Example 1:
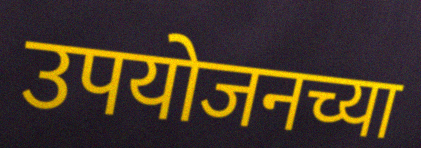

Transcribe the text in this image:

उपयोजनच्या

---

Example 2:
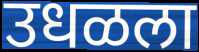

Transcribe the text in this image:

उधळला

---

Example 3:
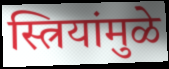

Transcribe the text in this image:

स्त्रियांमुळे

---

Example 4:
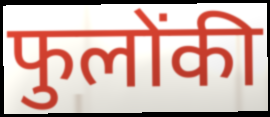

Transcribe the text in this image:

फुलोंकी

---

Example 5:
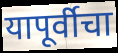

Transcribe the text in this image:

यापूर्वीचा